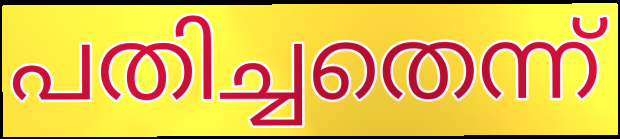
പതിച്ചതെന്ന്